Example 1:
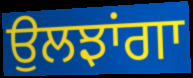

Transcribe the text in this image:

ਉਲਝਾਂਗਾ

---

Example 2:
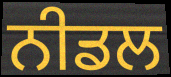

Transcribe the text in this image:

ਨੀਡਲ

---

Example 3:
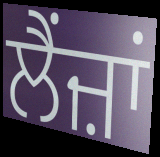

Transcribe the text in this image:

ਲੈਂਜ਼ਾਂ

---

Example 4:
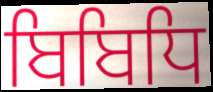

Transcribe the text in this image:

ਬਿਬਿਧਿ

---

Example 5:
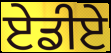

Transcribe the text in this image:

ਏਡੀਏ